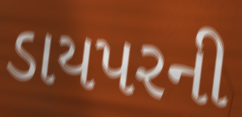
ડાયપરની